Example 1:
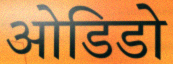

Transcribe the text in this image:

ओडिडो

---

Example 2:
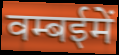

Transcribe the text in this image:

वम्बईमें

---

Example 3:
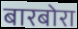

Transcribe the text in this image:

बारबोरा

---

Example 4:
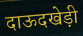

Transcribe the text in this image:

दाऊदखेड़ी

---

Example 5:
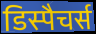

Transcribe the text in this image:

डिस्पैचर्स